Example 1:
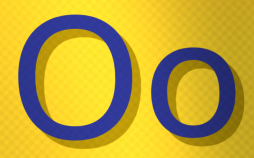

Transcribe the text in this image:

Oo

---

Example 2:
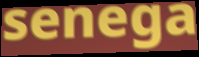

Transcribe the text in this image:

senega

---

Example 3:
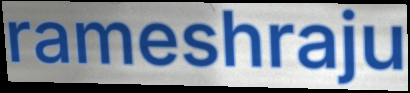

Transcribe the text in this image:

rameshraju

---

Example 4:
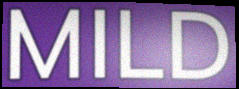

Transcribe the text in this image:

MILD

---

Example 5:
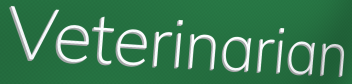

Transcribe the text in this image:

Veterinarian